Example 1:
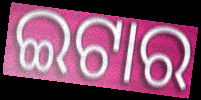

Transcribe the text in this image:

ଇଟାର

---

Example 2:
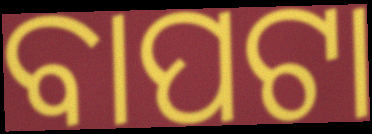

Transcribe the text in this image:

ବାପଟା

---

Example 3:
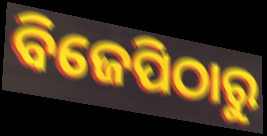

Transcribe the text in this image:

ବିଜେପିଠାରୁ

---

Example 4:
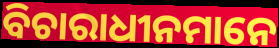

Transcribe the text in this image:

ବିଚାରାଧୀନମାନେ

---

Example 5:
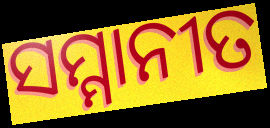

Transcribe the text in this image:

ସମ୍ମାନୀତ